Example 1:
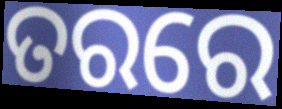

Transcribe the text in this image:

ତରରେ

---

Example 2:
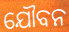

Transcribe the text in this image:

ଯୌବନ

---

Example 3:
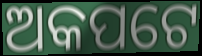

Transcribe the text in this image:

ଅକପଟେ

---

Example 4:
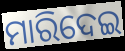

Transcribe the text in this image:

ମାରିଦେଇ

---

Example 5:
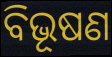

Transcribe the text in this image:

ବିଭୂଷଣ